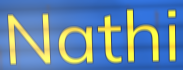
Nathi